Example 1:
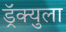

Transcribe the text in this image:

ड्रॅक्युला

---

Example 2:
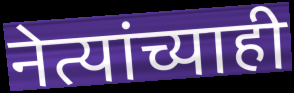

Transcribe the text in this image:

नेत्यांच्याही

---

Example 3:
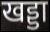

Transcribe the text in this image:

खड्डा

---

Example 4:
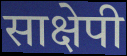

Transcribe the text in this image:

साक्षेपी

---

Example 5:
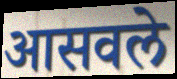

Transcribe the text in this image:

आसवले